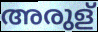
അരുള്